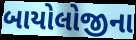
બાયોલોજીના